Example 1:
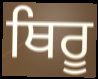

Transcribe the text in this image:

ਥਿਰੂ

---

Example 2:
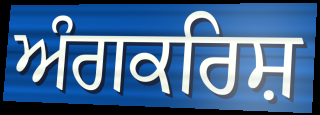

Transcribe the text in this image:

ਅੰਗਕਰਿਸ਼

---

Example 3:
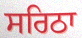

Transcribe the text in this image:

ਸਰਿਠਾ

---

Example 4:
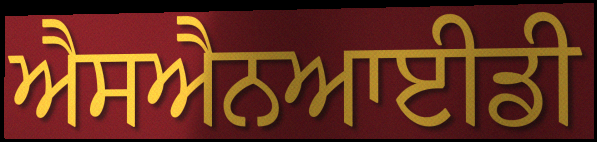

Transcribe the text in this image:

ਐਸਐਨਆਈਡੀ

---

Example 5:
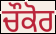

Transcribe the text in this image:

ਚੌਕੋਰ